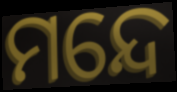
ମନ୍ଦେ